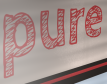
pure